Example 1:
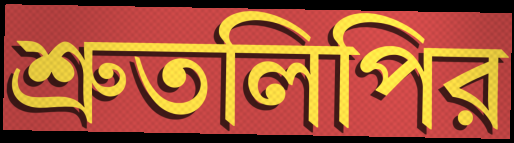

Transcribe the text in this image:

শ্রুতলিপির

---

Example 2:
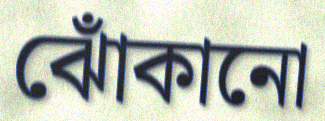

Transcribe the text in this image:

ঝোঁকানো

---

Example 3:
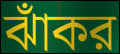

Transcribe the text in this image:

ঝাঁকর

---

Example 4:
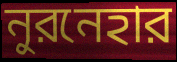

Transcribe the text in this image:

নুরনেহার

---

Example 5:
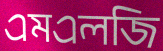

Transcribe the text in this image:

এমএলজি